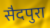
सैदपुरा